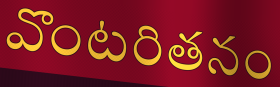
వొంటరితనం